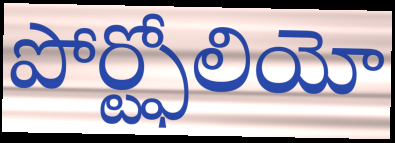
పోర్ట్ఫోలియో